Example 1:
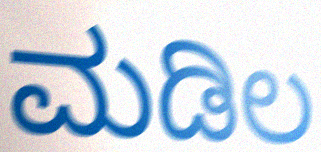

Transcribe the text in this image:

ಮಡಿಲ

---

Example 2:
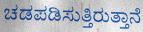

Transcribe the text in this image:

ಚಡಪಡಿಸುತ್ತಿರುತ್ತಾನೆ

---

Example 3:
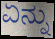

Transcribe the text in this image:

ಏನ್ನು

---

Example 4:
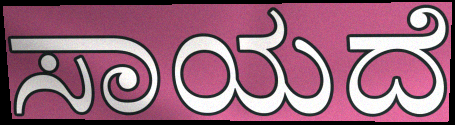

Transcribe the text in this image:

ಸಾಯದೆ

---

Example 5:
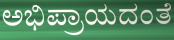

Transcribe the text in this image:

ಅಭಿಪ್ರಾಯದಂತೆ